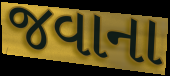
જવાના